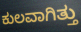
ಕುಲವಾಗಿತ್ತು